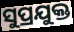
ସୁପ୍ରଯୁକ୍ତ